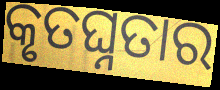
କୃତଘ୍ନତାର